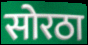
सोरठा